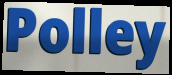
Polley